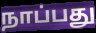
நாப்பது